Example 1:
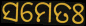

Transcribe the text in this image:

ସମେତଃ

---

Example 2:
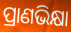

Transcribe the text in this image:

ପ୍ରାଣଭିକ୍ଷା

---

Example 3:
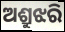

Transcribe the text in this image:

ଅଶ୍ରୁଝରି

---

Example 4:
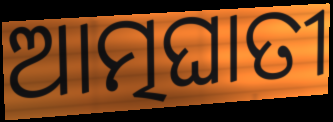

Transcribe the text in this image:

ଆତ୍ମଘାତୀ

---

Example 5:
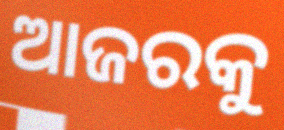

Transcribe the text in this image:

ଆଜରକୁ